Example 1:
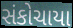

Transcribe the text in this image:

સંકોચાયા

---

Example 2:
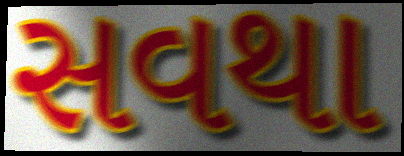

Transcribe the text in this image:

સવથા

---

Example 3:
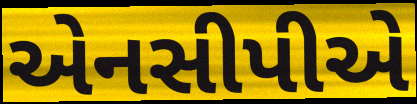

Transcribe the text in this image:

એનસીપીએ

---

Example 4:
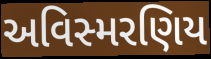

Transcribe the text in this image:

અવિસ્મરણિય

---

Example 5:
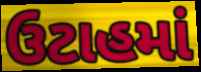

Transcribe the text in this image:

ઉટાહમાં